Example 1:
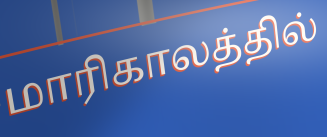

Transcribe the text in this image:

மாரிகாலத்தில்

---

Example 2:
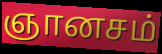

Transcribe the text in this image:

ஞானசம்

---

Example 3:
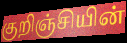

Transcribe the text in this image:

குறிஞ்சியின்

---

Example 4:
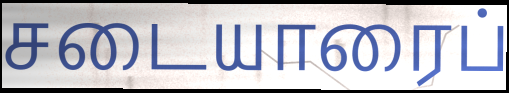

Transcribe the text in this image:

சடையாரைப்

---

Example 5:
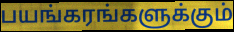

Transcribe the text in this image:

பயங்கரங்களுக்கும்